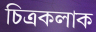
চিত্ৰকলাক